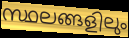
സ്ഥലങ്ങളിലും